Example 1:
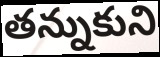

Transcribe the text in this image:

తన్నుకుని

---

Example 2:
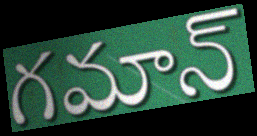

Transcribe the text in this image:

గమాన్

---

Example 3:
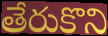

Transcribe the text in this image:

తేరుకొని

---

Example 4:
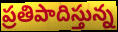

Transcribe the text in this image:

ప్రతిపాదిస్తున్న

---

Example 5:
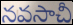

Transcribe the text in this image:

నవసాచీ